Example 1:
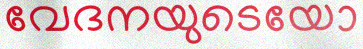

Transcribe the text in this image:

വേദനയുടെയോ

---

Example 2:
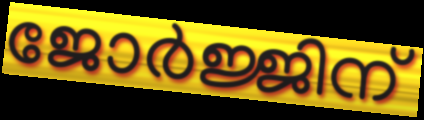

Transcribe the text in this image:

ജോർജ്ജിന്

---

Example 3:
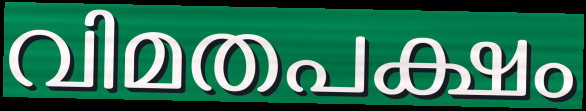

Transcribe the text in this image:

വിമതപക്ഷം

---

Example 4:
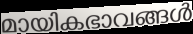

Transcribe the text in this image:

മായികഭാവങ്ങൾ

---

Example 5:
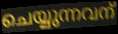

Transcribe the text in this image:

ചെയ്യുന്നവന്